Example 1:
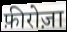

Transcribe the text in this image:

फ़ीरोज़ा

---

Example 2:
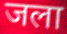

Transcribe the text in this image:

जला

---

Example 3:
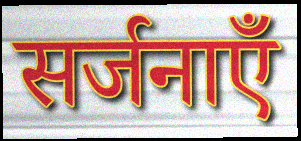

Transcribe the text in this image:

सर्जनाएँ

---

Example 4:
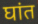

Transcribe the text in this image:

घांत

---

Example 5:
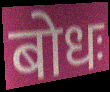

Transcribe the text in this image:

बोधः